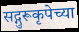
सद्गुरूकृपेच्या